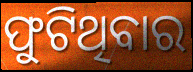
ଫୁଟିଥିବାର